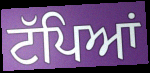
ਟੱਪਿਆਂ